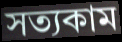
সত্যকাম